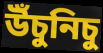
উঁচুনিচু